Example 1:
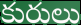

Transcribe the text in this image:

కురులు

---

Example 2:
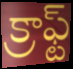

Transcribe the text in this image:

క్రాఫ్ట్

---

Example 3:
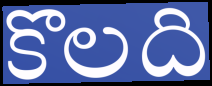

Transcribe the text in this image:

కొలది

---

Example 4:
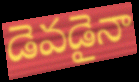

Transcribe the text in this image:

డెవడైనా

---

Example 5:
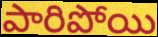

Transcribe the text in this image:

పారిపోయి